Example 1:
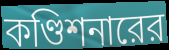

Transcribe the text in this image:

কণ্ডিশনারের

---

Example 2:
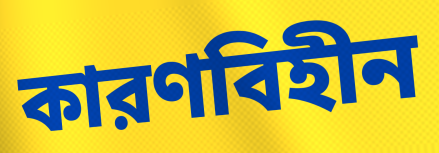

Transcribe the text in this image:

কারণবিহীন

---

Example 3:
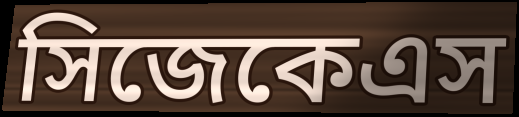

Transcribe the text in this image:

সিজেকেএস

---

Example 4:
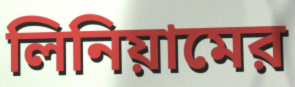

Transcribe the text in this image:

লিনিয়ামের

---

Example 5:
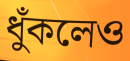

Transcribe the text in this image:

ধুঁকলেও